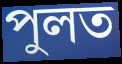
পুলত